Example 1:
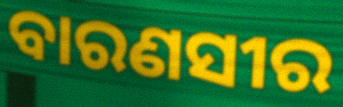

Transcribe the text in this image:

ବାରଣସୀର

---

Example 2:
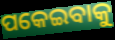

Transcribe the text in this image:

ପକେଇବାକୁ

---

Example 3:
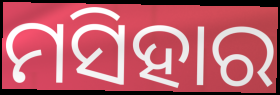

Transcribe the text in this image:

ମସିହାର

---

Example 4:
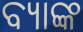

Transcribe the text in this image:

ବ୍ୟାଙ୍କ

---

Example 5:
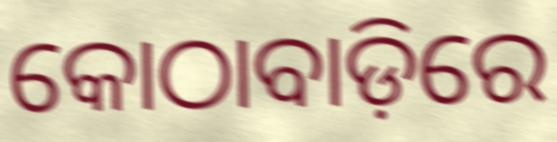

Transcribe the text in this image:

କୋଠାବାଡ଼ିରେ